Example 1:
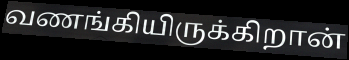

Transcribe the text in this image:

வணங்கியிருக்கிறான்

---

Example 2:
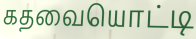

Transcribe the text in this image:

கதவையொட்டி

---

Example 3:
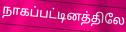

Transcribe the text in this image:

நாகப்பட்டினத்திலே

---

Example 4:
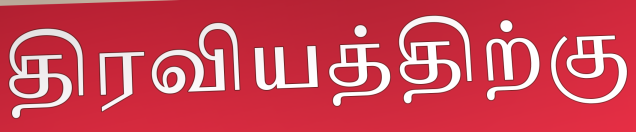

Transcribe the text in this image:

திரவியத்திற்கு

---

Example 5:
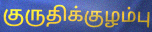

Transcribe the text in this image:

குருதிக்குழம்பு